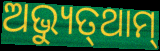
ଅଭ୍ୟୁତ୍‌ଥାମ୍